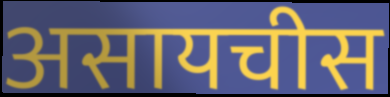
असायचीस